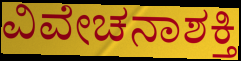
ವಿವೇಚನಾಶಕ್ತಿ